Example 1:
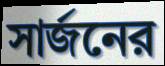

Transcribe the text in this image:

সার্জনের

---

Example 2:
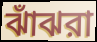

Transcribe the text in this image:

ঝাঁঝরা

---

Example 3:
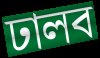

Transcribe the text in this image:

ঢালব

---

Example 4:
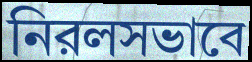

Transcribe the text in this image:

নিরলসভাবে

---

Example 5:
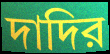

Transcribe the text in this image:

দাদির